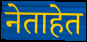
नेताहेत